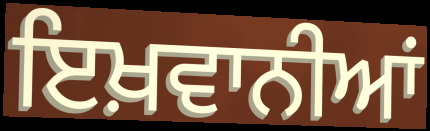
ਇਖ਼ਵਾਨੀਆਂ